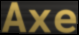
Axe